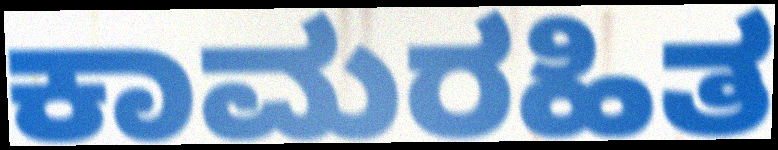
ಕಾಮರಹಿತ